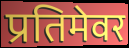
प्रतिमेवर